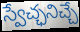
స్వేచ్ఛనిచ్చే